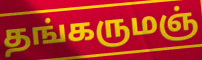
தங்கருமஞ்